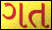
ગત